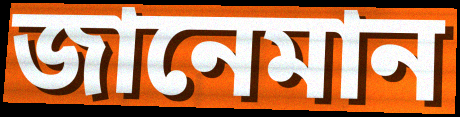
জানেমান